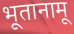
भूतानामू